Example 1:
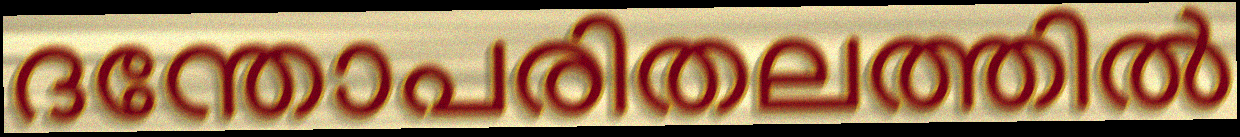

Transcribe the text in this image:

ദന്തോപരിതലത്തിൽ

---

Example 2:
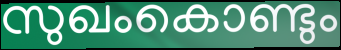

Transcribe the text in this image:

സുഖംകൊണ്ടും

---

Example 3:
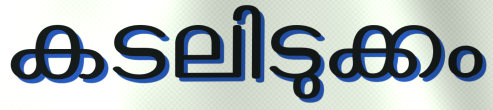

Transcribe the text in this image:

കടലിടുക്കം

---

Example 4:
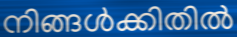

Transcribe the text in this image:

നിങ്ങൾക്കിതിൽ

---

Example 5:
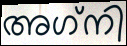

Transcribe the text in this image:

അഗ്‌നി